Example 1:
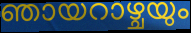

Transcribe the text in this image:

ഞായറാഴ്ചയും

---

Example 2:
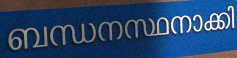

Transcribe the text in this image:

ബന്ധനസ്ഥനാക്കി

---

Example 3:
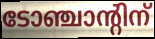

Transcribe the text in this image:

ടോഞ്ചാന്റിന്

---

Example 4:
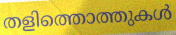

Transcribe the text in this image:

തളിത്തൊത്തുകൾ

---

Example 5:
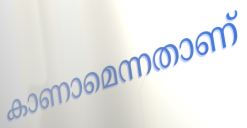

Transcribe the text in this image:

കാണാമെന്നതാണ്